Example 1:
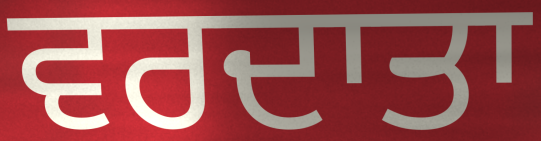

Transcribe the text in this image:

ਵਰਦਾਤਾ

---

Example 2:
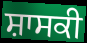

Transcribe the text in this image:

ਸ਼ਾਸਕੀ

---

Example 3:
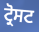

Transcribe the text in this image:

ਟ੍ਰੋਸਟ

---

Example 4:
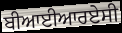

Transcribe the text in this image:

ਬੀਆਈਆਰਏਸੀ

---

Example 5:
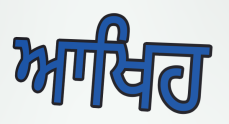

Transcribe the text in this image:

ਆਖਿਹ